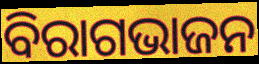
ବିରାଗଭାଜନ